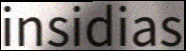
insidias